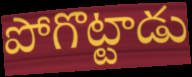
పోగొట్టాడు